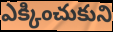
ఎక్కించుకుని